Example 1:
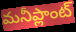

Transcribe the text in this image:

మనీప్లాంట్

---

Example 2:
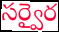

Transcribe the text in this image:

సర్వైర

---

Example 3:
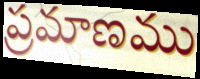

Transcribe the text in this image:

ప్రమాణము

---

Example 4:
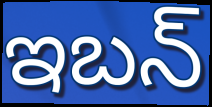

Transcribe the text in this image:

ఇబన్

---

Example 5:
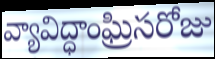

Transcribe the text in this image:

వ్యావిద్ధాంఘ్రిసరోజు